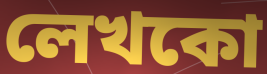
লেখকো